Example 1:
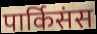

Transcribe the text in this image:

पार्किसंस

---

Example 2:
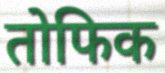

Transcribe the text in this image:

तोफिक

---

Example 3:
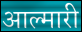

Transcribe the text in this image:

आल्मारी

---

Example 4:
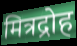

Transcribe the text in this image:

मित्रद्रोह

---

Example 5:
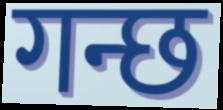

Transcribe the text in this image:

गन्छ